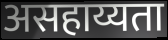
असहाय्यता